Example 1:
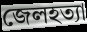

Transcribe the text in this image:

জেলহত্যা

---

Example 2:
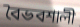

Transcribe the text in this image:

বৈভবশালী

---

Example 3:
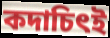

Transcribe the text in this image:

কদাচিৎই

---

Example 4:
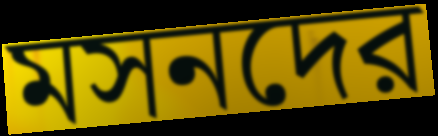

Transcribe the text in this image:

মসনদের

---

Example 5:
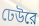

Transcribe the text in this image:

ঢেউরে